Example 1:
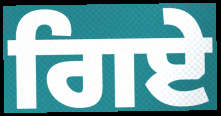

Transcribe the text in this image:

ਗਿਏ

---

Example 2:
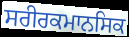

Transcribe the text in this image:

ਸਰੀਰਕਮਾਨਸਿਕ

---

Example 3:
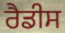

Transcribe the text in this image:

ਰੈਡੀਸ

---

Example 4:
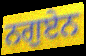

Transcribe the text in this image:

ਨਗੁਏਨ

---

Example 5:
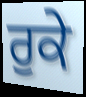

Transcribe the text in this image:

ਰੁਕੇ